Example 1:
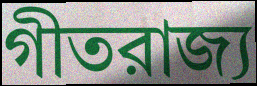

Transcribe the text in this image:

গীতরাজ্য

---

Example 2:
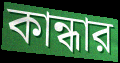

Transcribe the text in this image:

কান্ধার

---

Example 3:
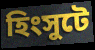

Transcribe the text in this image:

হিংসুটে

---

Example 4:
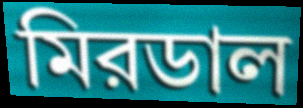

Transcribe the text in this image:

মিরডাল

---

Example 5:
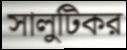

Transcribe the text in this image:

সালুটিকর